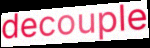
decouple